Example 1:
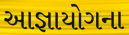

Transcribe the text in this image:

આજ્ઞાયોગના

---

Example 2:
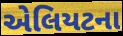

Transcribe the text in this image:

એલિયટના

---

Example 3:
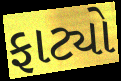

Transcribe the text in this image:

ફાટ્યો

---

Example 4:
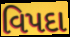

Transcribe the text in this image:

વિપદા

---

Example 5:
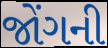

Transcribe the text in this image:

જોંગની